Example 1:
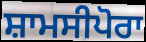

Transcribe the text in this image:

ਸ਼ਾਮਸੀਪੋਰਾ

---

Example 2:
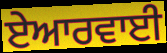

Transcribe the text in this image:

ਏਆਰਵਾਈ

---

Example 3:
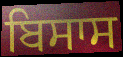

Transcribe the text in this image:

ਬਿਸਾਸ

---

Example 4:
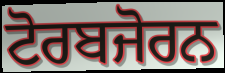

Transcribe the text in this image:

ਟੋਰਬਜੋਰਨ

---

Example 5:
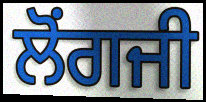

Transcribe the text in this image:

ਲੋਂਗਜੀ